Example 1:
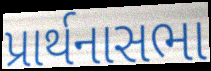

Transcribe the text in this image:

પ્રાર્થનાસભા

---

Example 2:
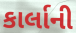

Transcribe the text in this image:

કાર્લાની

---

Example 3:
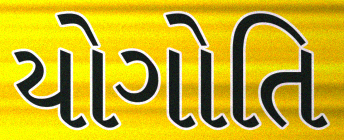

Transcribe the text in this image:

યોગોતિ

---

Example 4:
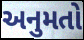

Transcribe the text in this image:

અનુમતો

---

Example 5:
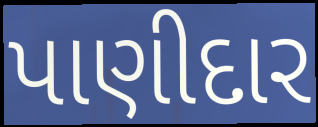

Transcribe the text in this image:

પાણીદાર